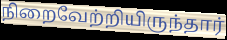
நிறைவேற்றியிருந்தார்